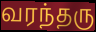
வரந்தரு